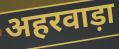
अहरवाड़ा